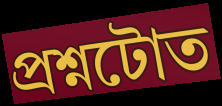
প্ৰশ্নটোত